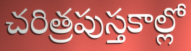
చరిత్రపుస్తకాల్లో